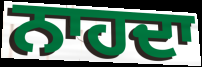
ਨਾਹਦਾ